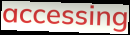
accessing